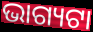
ଭାଗ୍ୟଟା